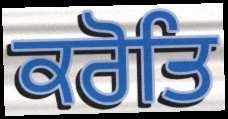
ਕਰੋਤਿ